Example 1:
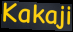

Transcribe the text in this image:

Kakaji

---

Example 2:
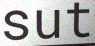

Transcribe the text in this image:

sut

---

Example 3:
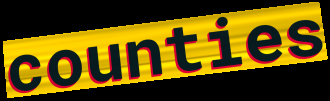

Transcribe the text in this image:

counties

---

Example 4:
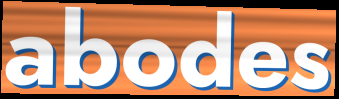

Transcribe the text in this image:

abodes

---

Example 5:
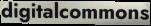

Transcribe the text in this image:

digitalcommons